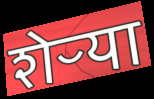
शेऱ्या